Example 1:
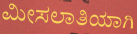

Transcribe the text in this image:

ಮೀಸಲಾತಿಯಾಗಿ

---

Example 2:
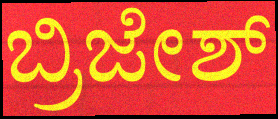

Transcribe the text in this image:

ಬ್ರಿಜೇಶ್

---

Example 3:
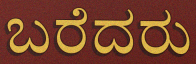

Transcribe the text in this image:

ಬರೆದರು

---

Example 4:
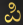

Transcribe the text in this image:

ಪಿ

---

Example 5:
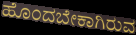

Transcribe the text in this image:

ಹೊಂದಬೇಕಾಗಿರುವ